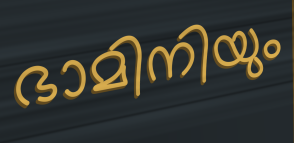
ഭാമിനിയും